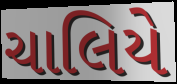
ચાલિયે